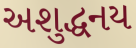
અશુદ્ધનય